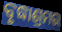
ବୃଦ୍ଧାଶ୍ରମର